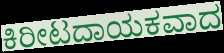
ಕಿರೀಟದಾಯಕವಾದ